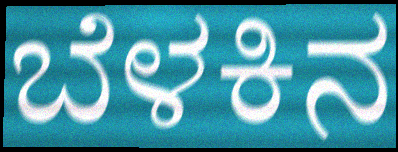
ಬೆಳಕಿನ